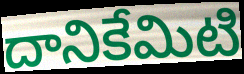
దానికేమిటి